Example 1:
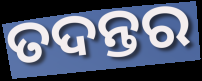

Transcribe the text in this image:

ତଦନ୍ତର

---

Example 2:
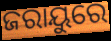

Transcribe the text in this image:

ଜରାୟୁରେ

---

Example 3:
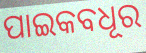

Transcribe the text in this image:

ପାଇକବଧୂର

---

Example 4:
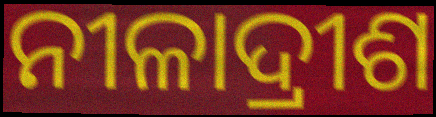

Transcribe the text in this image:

ନୀଳାଦ୍ରୀଶ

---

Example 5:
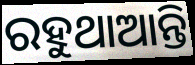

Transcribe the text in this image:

ରହୁଥାଆନ୍ତି